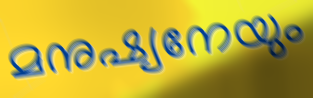
മനുഷ്യനേയും